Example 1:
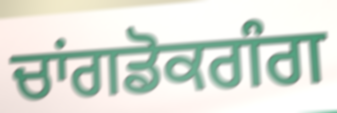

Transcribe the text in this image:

ਚਾਂਗਡੋਕਗੰਗ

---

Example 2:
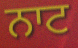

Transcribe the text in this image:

ਨਾਟ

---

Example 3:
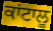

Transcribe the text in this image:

ਕਾਂਟਾਲੂ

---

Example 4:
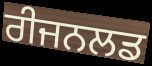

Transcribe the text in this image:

ਰੀਜਨਲਡ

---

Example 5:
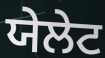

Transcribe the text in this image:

ਯੇਲੇਟ